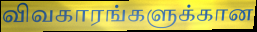
விவகாரங்களுக்கான